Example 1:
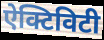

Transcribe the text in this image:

ऐक्टिविटी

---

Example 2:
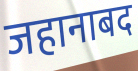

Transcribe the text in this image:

जहानाबद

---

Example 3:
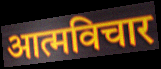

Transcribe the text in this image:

आत्मविचार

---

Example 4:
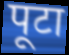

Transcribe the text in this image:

पूटा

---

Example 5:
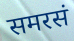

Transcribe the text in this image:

समरसं